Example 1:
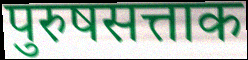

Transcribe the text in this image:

पुरुषसत्ताक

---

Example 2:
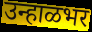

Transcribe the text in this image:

उन्हाळभर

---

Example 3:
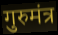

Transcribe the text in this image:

गुरुमंत्र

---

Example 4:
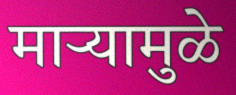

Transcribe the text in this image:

माऱ्यामुळे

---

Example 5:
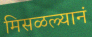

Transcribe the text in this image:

मिसळल्यानं